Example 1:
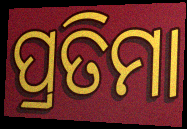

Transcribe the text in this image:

ପ୍ରତିମା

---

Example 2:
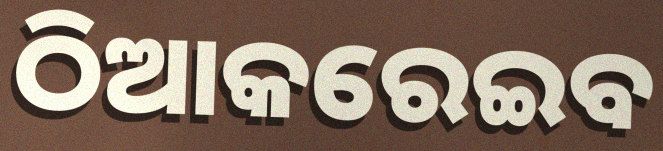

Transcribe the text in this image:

ଠିଆକରେଇବ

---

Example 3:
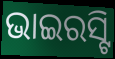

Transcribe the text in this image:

ଭାଇରସ୍ଟି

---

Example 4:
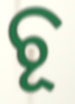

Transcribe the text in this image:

ଚୂ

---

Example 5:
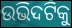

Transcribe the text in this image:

ଉଭିଦଟିକୁ